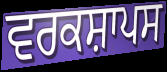
ਵਰਕਸ਼ਾਪਸ